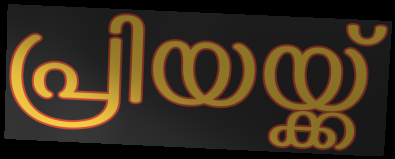
പ്രിയയ്ക്ക്